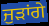
ਜੁੜਾਂਗੇ